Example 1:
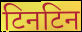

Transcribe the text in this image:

टिनटिन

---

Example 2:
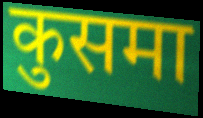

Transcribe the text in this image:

कुसमा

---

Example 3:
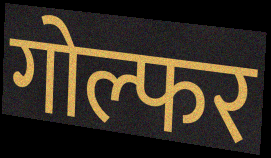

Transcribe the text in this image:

गोल्फर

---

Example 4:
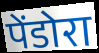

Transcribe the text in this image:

पेंडोरा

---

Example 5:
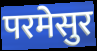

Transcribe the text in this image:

परमेसुर